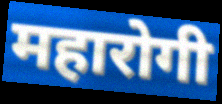
महारोगी